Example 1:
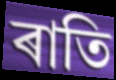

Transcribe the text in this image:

ৰাতি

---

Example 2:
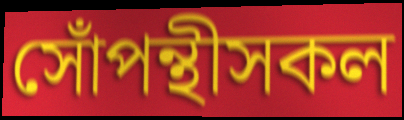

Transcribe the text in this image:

সোঁপন্থীসকল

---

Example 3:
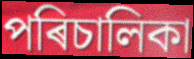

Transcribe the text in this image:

পৰিচালিকা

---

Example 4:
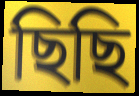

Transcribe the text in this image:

ছিছি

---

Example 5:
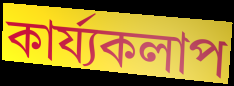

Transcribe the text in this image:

কাৰ্য্যকলাপ